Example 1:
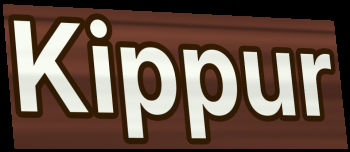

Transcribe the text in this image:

Kippur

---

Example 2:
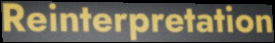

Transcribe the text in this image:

Reinterpretation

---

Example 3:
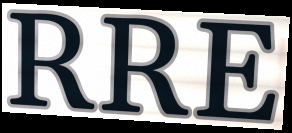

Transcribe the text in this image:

RRE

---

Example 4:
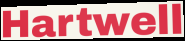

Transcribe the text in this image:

Hartwell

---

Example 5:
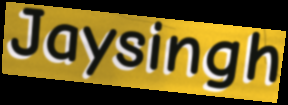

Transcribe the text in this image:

Jaysingh